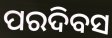
ପରଦିବସ